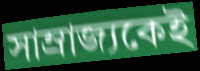
সাম্রাজ্যকেই